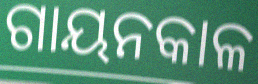
ଗାୟନକାଳ